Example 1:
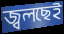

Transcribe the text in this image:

জ্বলছেই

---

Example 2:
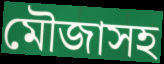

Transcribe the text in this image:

মৌজাসহ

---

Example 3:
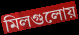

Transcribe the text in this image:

মিলগুলোয়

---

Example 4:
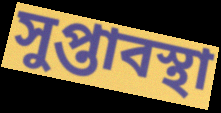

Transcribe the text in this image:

সুপ্তাবস্থা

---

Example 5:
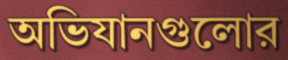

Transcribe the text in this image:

অভিযানগুলোর